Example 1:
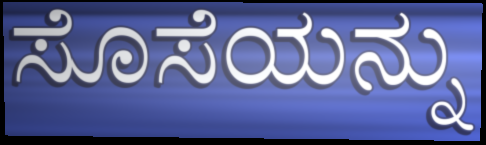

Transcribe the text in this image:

ಸೊಸೆಯನ್ನು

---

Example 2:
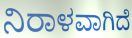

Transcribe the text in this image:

ನಿರಾಳವಾಗಿದೆ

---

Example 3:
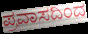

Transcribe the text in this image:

ಪ್ರವಾಸದಿಂದ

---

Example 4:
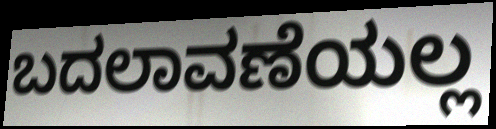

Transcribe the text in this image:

ಬದಲಾವಣೆಯಲ್ಲ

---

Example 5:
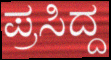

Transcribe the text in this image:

ಪ್ರಸಿದ್ದ